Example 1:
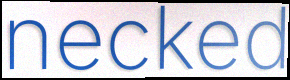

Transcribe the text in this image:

necked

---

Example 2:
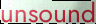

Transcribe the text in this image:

unsound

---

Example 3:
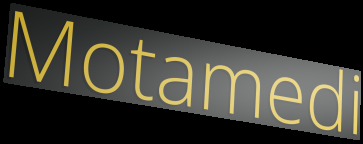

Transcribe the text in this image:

Motamedi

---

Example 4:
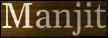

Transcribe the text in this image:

Manjit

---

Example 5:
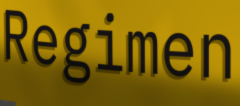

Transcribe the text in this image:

Regimen